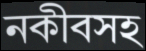
নকীবসহ